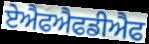
ਏਐਫਐਫਡੀਐਫ